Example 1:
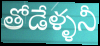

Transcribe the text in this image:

తోడేళ్ళనీ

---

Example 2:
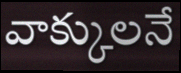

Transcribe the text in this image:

వాక్కులనే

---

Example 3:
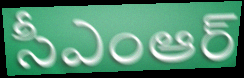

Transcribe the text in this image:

సీఎంఆర్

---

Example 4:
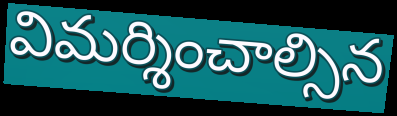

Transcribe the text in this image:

విమర్శించాల్సిన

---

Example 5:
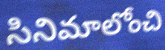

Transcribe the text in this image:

సినిమాలోంచి